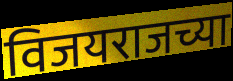
विजयराजच्या